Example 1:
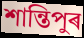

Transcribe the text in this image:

শান্তিপুৰ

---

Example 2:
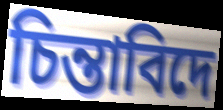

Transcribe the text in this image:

চিন্তাবিদে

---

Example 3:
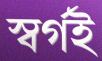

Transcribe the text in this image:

স্বৰ্গই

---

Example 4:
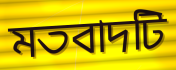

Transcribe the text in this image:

মতবাদটি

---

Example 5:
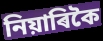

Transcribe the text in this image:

নিয়াৰিকৈ